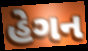
હેગન